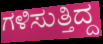
ಗಳಿಸುತ್ತಿದ್ದ